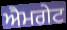
ਐਮਗੇਟ